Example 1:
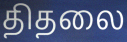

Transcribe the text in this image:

திதலை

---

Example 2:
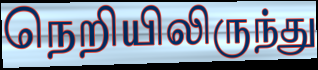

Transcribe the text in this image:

நெறியிலிருந்து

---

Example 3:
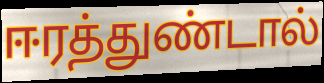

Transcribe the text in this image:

ஈரத்துண்டால்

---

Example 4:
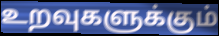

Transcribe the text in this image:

உறவுகளுக்கும்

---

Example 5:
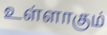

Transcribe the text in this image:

உள்ளாகும்